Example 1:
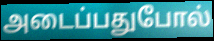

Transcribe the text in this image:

அடைப்பதுபோல்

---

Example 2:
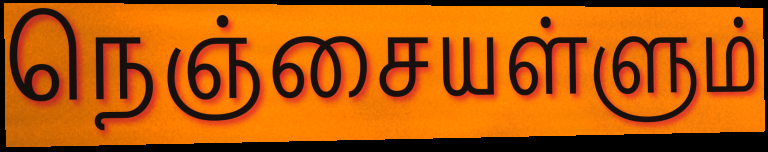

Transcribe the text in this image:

நெஞ்சையள்ளும்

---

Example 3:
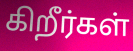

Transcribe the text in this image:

கிறீர்கள்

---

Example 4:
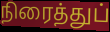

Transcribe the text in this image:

நிரைத்துப்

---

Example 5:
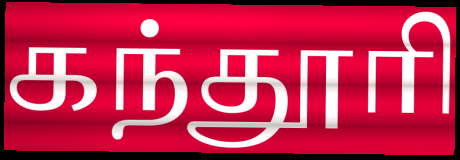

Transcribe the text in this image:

கந்தூரி